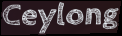
Ceylong